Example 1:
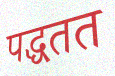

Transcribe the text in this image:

पद्धतत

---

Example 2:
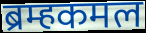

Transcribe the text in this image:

ब्रम्हकमल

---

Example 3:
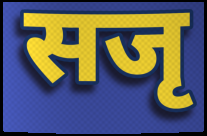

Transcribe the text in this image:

सजृ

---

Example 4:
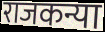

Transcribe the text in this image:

राजकन्या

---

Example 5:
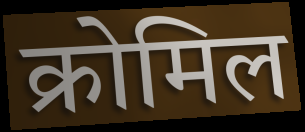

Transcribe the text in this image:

क्रोमिल